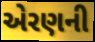
એરણની